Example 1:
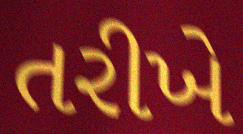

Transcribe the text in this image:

તરીખે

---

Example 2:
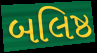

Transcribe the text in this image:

બલિષ્ઠ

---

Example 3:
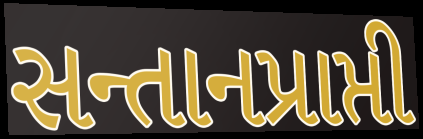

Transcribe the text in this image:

સન્તાનપ્રાપ્તી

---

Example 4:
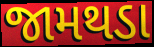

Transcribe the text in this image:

જામથડા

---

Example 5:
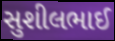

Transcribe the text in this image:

સુશીલભાઈ